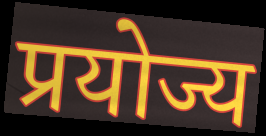
प्रयोज्य